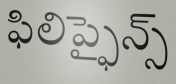
ఫిలిప్ఫైన్స్